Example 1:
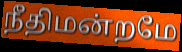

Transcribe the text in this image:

நீதிமன்றமே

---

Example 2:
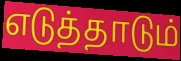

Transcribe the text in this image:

எடுத்தாடும்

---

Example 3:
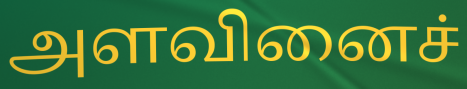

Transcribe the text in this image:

அளவினைச்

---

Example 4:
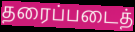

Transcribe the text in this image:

தரைப்படைத்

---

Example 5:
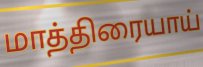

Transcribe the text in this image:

மாத்திரையாய்